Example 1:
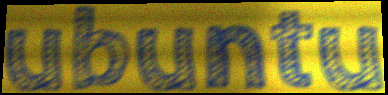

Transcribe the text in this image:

ubuntu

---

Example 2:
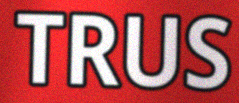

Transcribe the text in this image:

TRUS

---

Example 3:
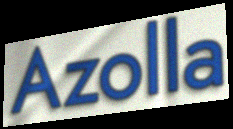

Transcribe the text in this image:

Azolla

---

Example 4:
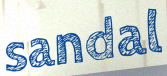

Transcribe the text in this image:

sandal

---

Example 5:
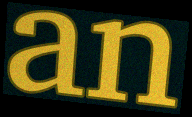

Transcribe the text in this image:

an